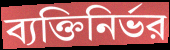
ব্যক্তিনির্ভর